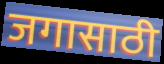
जगासाठी